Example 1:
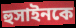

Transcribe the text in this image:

হুসাইনকে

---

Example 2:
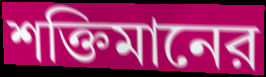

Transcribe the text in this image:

শক্তিমানের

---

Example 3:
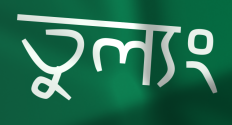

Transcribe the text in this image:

তুল্যং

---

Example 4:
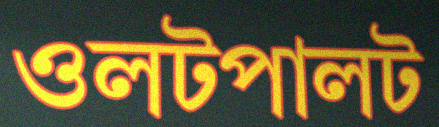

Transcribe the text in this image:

ওলটপালট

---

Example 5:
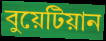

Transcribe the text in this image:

বুয়েটিয়ান